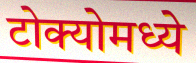
टोक्योमध्ये